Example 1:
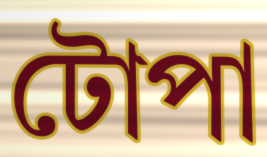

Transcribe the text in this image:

টোপা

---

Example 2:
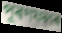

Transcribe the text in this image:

পূৰণফলৰ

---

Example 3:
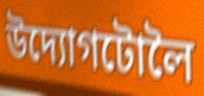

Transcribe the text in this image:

উদ্যোগটোলৈ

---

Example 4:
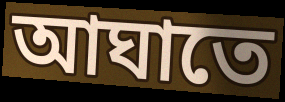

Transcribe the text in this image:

আঘাতে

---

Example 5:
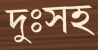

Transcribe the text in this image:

দুঃসহ